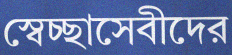
স্বেচ্ছাসেবীদের